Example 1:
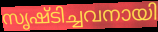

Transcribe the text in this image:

സൃഷ്ടിച്ചവനായി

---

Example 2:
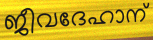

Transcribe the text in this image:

ജീവദേഹാന്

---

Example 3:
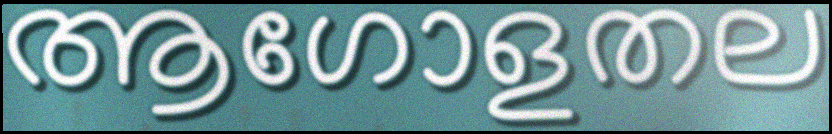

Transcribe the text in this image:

ആഗോളതല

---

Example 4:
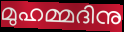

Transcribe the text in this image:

മുഹമ്മദിനു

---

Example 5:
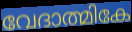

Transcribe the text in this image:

വേദാത്മികേ